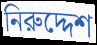
নিরুদ্দেশ